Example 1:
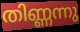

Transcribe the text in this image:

തിണ്ണന്നു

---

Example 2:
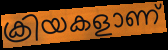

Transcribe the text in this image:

ക്രിയകളാണ്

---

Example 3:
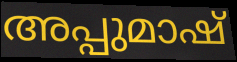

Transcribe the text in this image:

അപ്പുമാഷ്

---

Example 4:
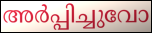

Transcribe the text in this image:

അർപ്പിച്ചുവോ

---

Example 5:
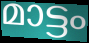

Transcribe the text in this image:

മാട്ടം